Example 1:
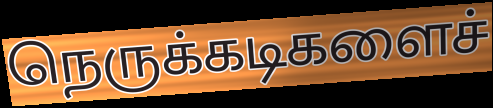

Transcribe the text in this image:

நெருக்கடிகளைச்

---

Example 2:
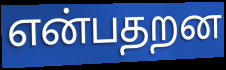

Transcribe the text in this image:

என்பதறன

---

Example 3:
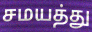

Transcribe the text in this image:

சமயத்து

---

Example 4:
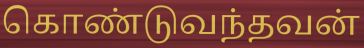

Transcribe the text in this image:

கொண்டுவந்தவன்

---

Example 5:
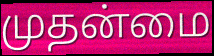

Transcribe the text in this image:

முதன்மை